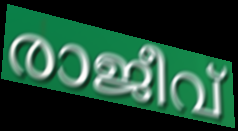
രാജീവ്